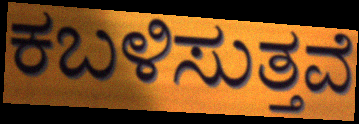
ಕಬಳಿಸುತ್ತವೆ